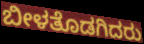
ಬೀಳತೊಡಗಿದರು